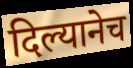
दिल्यानेच